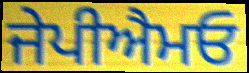
ਜੇਪੀਐਮਓ